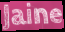
Jaine